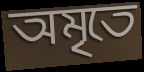
অমৃতে